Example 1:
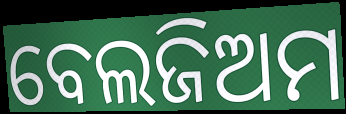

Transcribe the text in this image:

ବେଲଜିଅମ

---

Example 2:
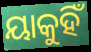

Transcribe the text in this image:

ୟାକୁହିଁ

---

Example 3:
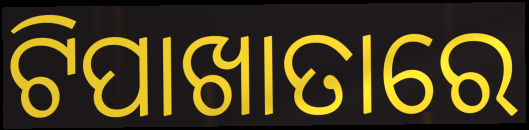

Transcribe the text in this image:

ଟିପାଖାତାରେ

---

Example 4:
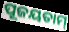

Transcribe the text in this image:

ପୂଜୟତାମ୍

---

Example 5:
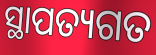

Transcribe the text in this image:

ସ୍ଥାପତ୍ୟଗତ